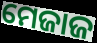
ମେଜାଜ